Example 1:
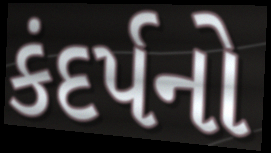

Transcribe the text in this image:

કંદર્પનો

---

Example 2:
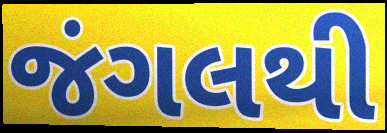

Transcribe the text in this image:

જંગલથી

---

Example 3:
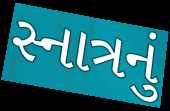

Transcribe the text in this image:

સ્નાત્રનું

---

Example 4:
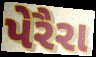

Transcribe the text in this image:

પેરૈરા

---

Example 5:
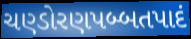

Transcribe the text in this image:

ચણ્ડોરણપબ્બતપાદં